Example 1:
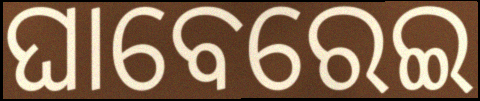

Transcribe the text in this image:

ଘାବେରେଇ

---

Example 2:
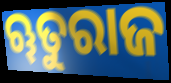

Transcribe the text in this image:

ୠତୁରାଜ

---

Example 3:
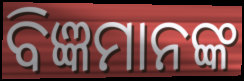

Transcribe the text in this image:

ବିଜ୍ଞମାନଙ୍କ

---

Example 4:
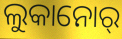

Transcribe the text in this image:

ଲୁକାନୋର୍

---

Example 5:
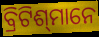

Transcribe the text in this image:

ବ୍ରିଟିଶ୍‌ମାନେ